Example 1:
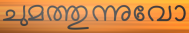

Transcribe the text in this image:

ചുമത്തുന്നുവോ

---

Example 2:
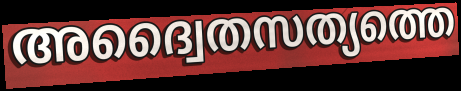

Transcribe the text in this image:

അദ്വൈതസത്യത്തെ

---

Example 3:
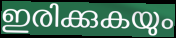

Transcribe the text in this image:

ഇരിക്കുകയും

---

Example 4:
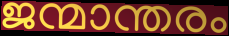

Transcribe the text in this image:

ജന്മാന്തരം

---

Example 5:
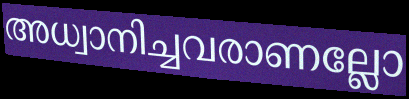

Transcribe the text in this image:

അധ്വാനിച്ചവരാണല്ലോ